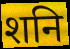
शनि